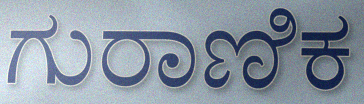
ಗುರಾಣಿಕ